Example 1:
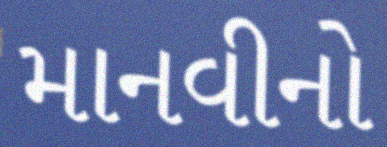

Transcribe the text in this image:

માનવીનો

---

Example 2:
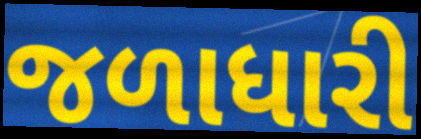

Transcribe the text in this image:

જળાધારી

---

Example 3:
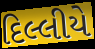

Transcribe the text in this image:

દિલ્લીયે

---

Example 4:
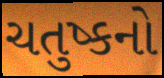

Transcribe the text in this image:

ચતુષ્કનો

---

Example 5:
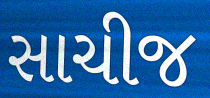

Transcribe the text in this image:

સાચીજ